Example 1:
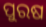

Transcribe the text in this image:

ପୁରଷ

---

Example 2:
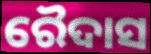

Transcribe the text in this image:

ରୈଦାସ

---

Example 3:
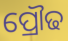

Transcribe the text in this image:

ପ୍ରୌଢ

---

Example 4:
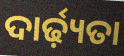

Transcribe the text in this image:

ଦାର୍ଢ଼୍ୟତା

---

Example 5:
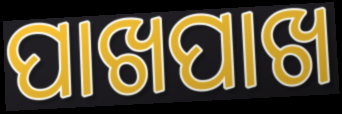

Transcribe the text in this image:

ପାଖପାଖ